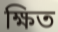
ক্ষিত